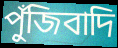
পুঁজিবাদি